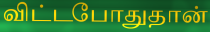
விட்டபோதுதான்